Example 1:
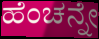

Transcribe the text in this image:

ಹೆಂಚನ್ನೇ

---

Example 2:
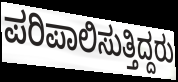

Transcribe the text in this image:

ಪರಿಪಾಲಿಸುತ್ತಿದ್ದರು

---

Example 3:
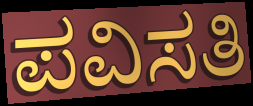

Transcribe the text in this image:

ಪವಿಸತಿ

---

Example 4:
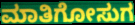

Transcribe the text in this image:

ಮಾತಿಗೋಸುಗ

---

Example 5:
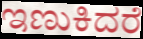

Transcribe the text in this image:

ಇಣುಕಿದರೆ